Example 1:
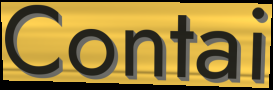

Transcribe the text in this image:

Contai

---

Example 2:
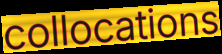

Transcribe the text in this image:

collocations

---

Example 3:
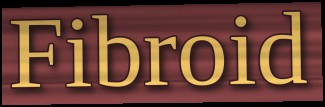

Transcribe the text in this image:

Fibroid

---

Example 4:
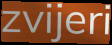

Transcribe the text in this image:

zvijeri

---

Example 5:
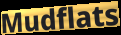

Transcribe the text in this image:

Mudflats